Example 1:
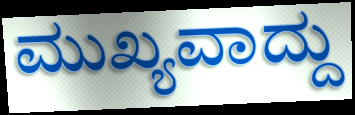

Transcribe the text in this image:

ಮುಖ್ಯವಾದ್ದು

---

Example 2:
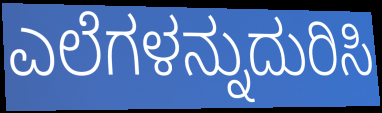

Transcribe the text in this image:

ಎಲೆಗಳನ್ನುದುರಿಸಿ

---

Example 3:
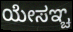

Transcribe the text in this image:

ಯೇಸಞ್ಚ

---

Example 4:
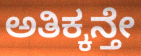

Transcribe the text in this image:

ಅತಿಕ್ಕನ್ತೇ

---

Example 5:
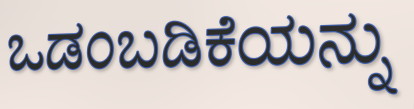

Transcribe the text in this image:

ಒಡಂಬಡಿಕೆಯನ್ನು